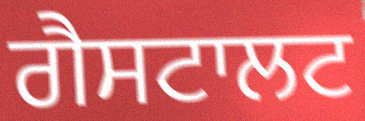
ਗੈਸਟਾਲਟ